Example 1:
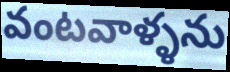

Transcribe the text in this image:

వంటవాళ్ళను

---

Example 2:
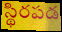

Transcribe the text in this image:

స్థిరపడ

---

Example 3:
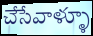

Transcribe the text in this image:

చేసేవాళ్ళూ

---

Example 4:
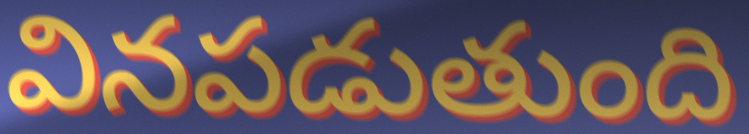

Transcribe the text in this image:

వినపడుతుంది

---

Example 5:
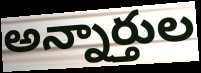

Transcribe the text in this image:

అన్నార్తుల